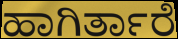
ಹಾಗಿರ್ತಾರೆ